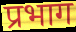
प्रभाग